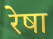
रेषा